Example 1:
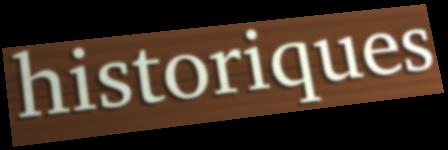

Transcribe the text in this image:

historiques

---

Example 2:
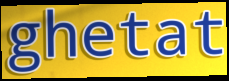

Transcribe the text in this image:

ghetat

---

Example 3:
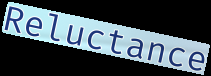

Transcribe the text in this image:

Reluctance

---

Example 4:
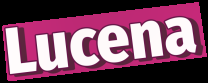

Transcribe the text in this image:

Lucena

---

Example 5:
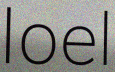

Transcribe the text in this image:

Ioel